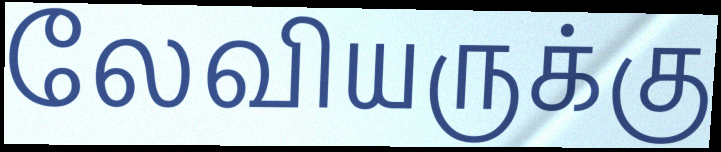
லேவியருக்கு